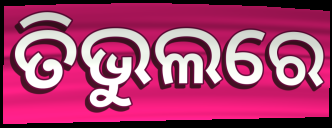
ତିଭୁଲରେ